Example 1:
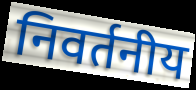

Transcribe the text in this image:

निवर्तनीय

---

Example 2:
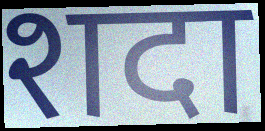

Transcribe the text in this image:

शदा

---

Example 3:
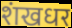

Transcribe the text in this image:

शंखधर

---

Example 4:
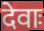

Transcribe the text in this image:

देवाः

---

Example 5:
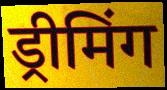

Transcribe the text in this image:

ड्रीमिंग